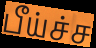
பீய்ச்ச